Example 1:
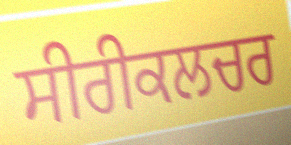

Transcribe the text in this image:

ਸੀਰੀਕਲਚਰ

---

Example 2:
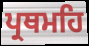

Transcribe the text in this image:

ਪ੍ਰਥਮਹਿ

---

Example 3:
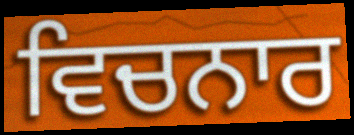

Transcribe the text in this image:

ਵਿਚਨਾਰ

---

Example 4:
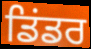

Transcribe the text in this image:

ਡਿਂਡਰ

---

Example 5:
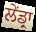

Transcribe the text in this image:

ਲੇਂਡ੍ਰਾ